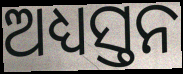
ଅଧ୍ୟସ୍ତନ